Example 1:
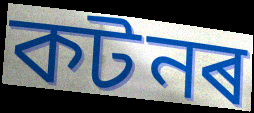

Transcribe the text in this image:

কটনৰ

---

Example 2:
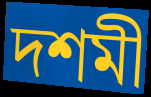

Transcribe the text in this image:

দশমী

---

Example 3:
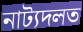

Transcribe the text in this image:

নাট্যদলত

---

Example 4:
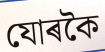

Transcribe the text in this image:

যোৰকৈ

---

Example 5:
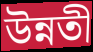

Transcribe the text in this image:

উন্নতী